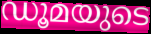
ഡൂമയുടെ